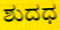
ಶುದಧ